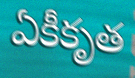
ఏకీకృత